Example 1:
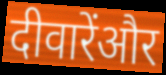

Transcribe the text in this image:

दीवारेंऔर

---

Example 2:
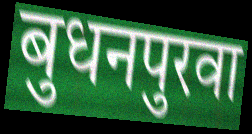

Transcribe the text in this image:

बुधनपुरवा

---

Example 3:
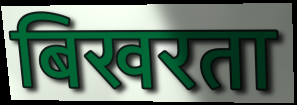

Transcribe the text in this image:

बिखरता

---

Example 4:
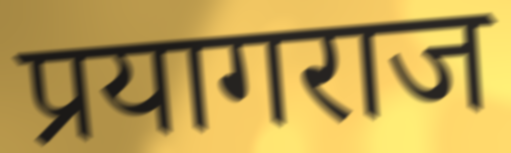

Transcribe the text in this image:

प्रयागराज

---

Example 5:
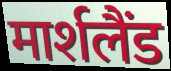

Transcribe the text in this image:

मार्शलैंड